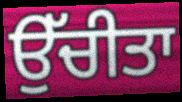
ਉੱਚੀਤਾ